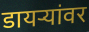
डायऱ्यांवर